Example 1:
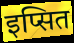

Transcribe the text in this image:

इप्सित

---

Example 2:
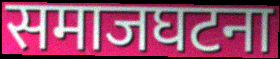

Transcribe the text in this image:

समाजघटना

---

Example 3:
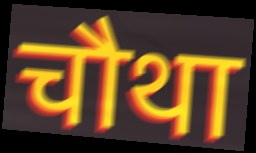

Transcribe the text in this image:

चौथा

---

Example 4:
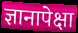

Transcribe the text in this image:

ज्ञानापेक्षा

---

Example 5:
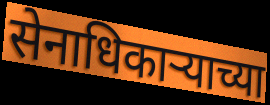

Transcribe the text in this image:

सेनाधिकाऱ्याच्या